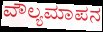
ವೌಲ್ಯಮಾಪನ